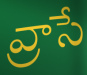
వ్రాసే